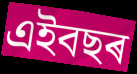
এইবছৰ